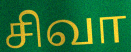
சிவா